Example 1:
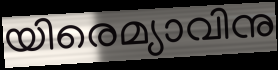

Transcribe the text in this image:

യിരെമ്യാവിനു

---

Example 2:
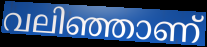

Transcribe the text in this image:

വലിഞ്ഞാണ്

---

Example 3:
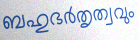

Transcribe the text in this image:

ബഹുഭർതൃത്വവും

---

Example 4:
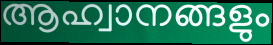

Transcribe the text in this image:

ആഹ്വാനങ്ങളും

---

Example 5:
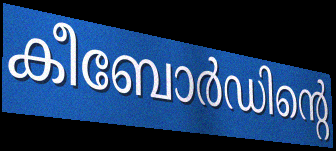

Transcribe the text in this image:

കീബോർഡിന്റെ